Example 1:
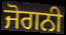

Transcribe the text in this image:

ਜੋਗਨੀ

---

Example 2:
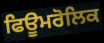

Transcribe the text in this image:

ਫਿਊਮਰੋਲਿਕ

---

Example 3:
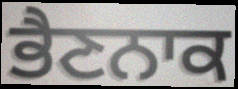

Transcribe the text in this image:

ਭੈਣਨਾਕ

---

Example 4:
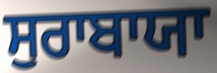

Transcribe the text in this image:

ਸੁਰਾਬਾਯਾ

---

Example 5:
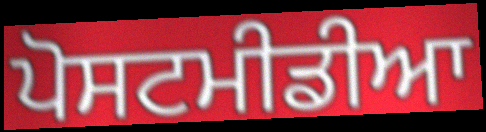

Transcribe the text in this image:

ਪੋਸਟਮੀਡੀਆ